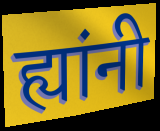
ह्यांनी